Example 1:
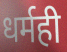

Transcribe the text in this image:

धर्मही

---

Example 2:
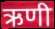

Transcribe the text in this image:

ऋणी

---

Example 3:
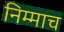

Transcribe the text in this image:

निम्माच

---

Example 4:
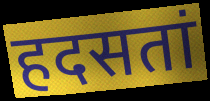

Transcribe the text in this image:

हदसतां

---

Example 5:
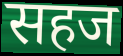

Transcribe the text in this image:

सहज